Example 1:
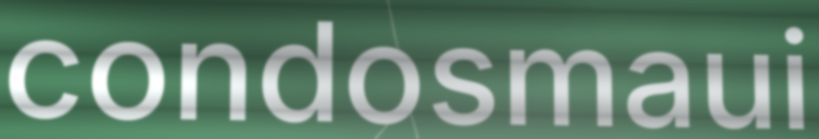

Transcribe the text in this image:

condosmaui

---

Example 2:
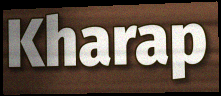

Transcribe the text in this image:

Kharap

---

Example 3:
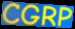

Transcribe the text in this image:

CGRP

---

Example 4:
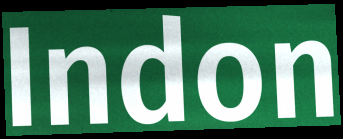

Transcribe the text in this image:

Indon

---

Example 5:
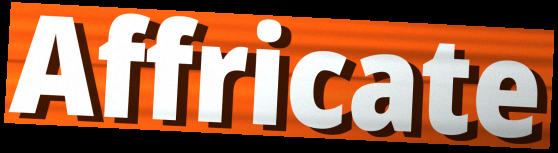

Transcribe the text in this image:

Affricate